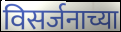
विसर्जनाच्या